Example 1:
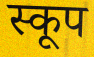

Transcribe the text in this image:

स्कूप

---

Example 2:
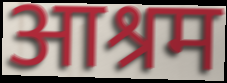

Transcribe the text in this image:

आश्रम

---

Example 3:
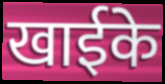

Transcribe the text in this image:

खाईके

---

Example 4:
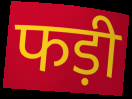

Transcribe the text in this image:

फड़ी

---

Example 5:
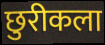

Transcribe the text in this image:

छुरीकला